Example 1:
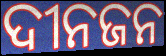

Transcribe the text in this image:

ଦୀନଜନ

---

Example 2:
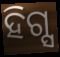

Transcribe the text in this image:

ହିଗ୍ସ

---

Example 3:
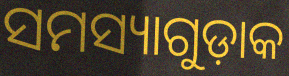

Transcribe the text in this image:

ସମସ୍ୟାଗୁଡ଼ାକ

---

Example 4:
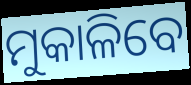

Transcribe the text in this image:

ମୁକାଳିବେ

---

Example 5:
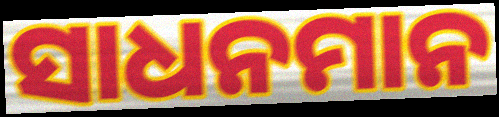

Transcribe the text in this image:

ସାଧନମାନ